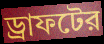
ড্রাফটের